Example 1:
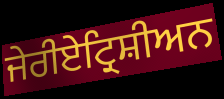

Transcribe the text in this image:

ਜੇਰੀਏਟ੍ਰਿਸ਼ੀਅਨ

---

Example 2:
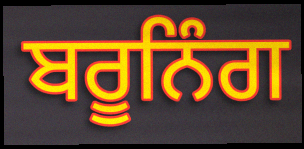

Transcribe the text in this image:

ਬਰੂਨਿੰਗ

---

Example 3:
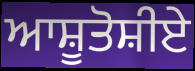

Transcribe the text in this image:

ਆਸ਼ੂਤੋਸ਼ੀਏ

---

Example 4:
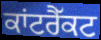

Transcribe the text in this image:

ਕਾਂਟਰੈੱਕਟ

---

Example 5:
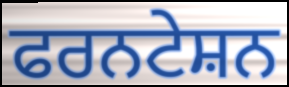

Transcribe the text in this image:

ਫਰਨਟੇਸ਼ਨ